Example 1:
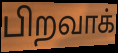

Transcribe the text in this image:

பிறவாக்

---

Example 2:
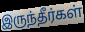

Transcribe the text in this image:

இருந்தீர்கள்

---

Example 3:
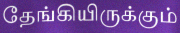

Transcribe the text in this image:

தேங்கியிருக்கும்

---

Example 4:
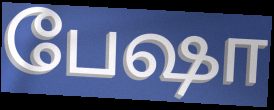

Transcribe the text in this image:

பேஷா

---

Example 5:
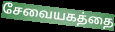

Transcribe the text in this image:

சேவையகத்தை